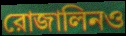
রোজালিনও